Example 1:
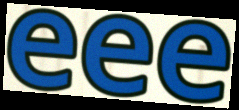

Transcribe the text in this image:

eee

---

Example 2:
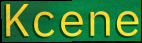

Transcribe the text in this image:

Kcene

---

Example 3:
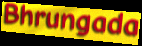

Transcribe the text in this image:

Bhrungada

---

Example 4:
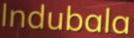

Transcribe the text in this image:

Indubala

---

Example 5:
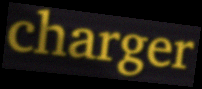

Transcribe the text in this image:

charger